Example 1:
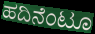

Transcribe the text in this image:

ಹದಿನೆಂಟೂ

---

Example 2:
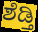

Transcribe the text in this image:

ಶೆಡ್ತಿ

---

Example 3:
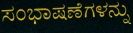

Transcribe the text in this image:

ಸಂಭಾಷಣೆಗಳನ್ನು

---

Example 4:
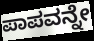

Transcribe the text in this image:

ಪಾಪವನ್ನೇ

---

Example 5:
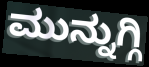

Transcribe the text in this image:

ಮುನ್ನುಗ್ಗಿ